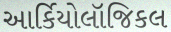
આર્કિયોલૉજિકલ